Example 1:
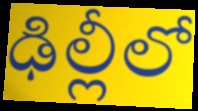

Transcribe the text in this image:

ఢిల్లీలో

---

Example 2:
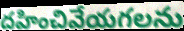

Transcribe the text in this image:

దహించివేయగలను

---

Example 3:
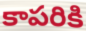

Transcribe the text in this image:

కాపరికి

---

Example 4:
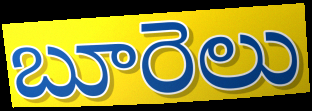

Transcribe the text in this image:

బూరెలు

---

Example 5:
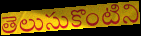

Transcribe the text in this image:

తెలుసుకొంటిని